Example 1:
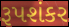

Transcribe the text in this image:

રૂપશંકર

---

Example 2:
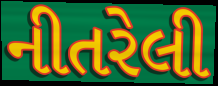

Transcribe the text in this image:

નીતરેલી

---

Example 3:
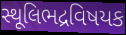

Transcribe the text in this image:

સ્થૂલિભદ્રવિષયક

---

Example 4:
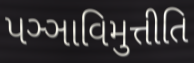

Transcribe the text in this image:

પઞ્ઞાવિમુત્તીતિ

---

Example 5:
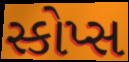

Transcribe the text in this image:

સ્કોપ્સ